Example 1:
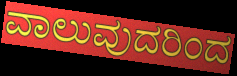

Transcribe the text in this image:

ವಾಲುವುದರಿಂದ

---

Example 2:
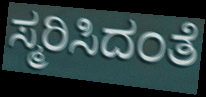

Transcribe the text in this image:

ಸ್ಮರಿಸಿದಂತೆ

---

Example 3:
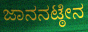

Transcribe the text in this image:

ಜಾನನಟ್ಠೇನ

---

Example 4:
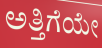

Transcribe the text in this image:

ಅತ್ತಿಗೆಯೇ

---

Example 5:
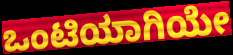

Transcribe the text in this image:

ಒಂಟಿಯಾಗಿಯೇ